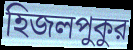
হিজলপুকুর